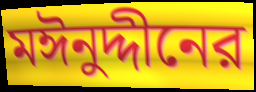
মঈনুদ্দীনের